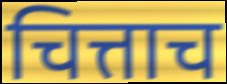
चित्ताच